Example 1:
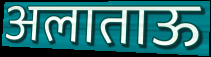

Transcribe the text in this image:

अलाताऊ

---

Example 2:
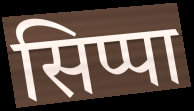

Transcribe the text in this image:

सिप्पा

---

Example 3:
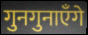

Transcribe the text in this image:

गुनगुनाएँगे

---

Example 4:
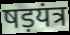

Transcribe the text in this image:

षड़यंत्र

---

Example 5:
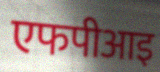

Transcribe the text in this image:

एफपीआइ